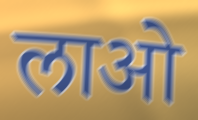
लाओ